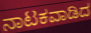
ನಾಟಕವಾಡಿದ